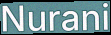
Nurani